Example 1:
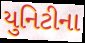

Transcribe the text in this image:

યુનિટીના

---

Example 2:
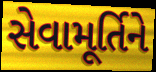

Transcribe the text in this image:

સેવામૂર્તિને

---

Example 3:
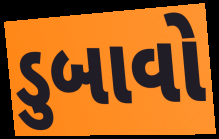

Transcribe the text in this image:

ડુબાવો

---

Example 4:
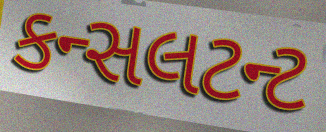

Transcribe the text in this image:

કન્સલટન્ટ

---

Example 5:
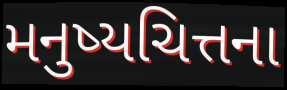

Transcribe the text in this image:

મનુષ્યચિત્તના